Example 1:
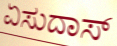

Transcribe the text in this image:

ಏಸುದಾಸ್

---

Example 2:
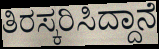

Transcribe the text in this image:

ತಿರಸ್ಕರಿಸಿದ್ದಾನೆ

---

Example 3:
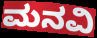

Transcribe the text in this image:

ಮನವಿ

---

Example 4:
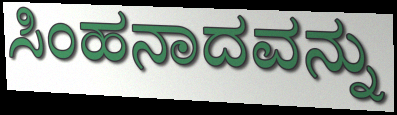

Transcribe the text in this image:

ಸಿಂಹನಾದವನ್ನು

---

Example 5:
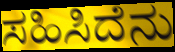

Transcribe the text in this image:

ಸಹಿಸಿದೆನು